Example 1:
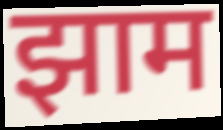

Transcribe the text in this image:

झाम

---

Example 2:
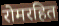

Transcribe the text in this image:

रोमरहित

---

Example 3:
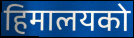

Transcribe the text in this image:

हिमालयको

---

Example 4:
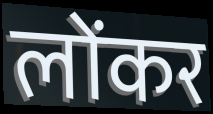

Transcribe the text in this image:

लोंकर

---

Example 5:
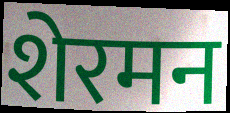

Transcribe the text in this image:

शेरमन